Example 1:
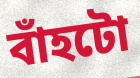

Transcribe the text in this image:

বাঁহটো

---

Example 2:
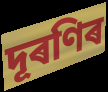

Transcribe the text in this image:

দূৰণিৰ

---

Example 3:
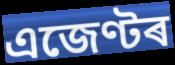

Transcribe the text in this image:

এজেণ্টৰ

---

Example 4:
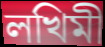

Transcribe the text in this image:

লখিমী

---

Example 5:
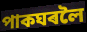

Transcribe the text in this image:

পাকঘৰলৈ